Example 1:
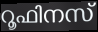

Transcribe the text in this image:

റൂഫിനസ്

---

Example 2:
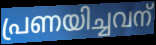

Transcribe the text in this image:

പ്രണയിച്ചവന്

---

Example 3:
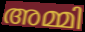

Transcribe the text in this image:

അമ്മി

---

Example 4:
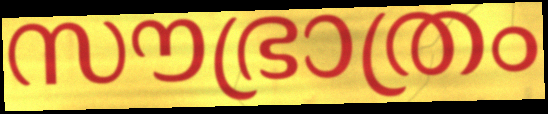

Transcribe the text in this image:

സൗഭ്രാത്രം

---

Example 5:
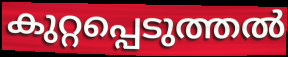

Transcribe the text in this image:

കുറ്റപ്പെടുത്തൽ